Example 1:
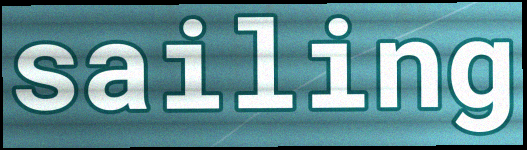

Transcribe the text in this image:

sailing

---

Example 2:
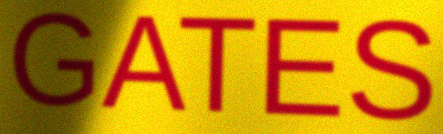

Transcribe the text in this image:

GATES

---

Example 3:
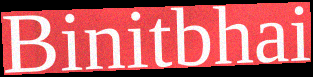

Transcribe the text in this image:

Binitbhai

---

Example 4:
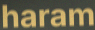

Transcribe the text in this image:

haram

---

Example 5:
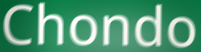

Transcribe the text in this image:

Chondo